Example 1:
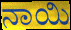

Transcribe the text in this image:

ನಾಯಿ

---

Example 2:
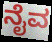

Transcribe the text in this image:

ನೈವ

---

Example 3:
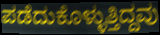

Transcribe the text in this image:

ಪಡೆದುಕೊಳ್ಳುತ್ತಿದ್ದವು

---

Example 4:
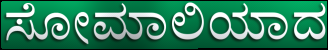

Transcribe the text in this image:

ಸೋಮಾಲಿಯಾದ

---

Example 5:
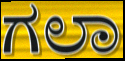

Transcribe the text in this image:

ಗಲಾ